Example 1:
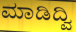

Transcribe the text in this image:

ಮಾಡಿದ್ವಿ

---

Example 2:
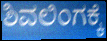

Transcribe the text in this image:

ಶಿವಲಿಂಗಕ್ಕೆ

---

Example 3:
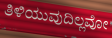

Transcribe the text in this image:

ತಿಳಿಯುವುದಿಲ್ಲವೋ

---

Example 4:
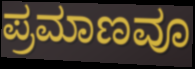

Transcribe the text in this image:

ಪ್ರಮಾಣವೂ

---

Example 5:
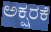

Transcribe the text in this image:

ಅಕ್ಷರಕೆ